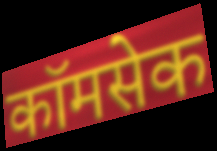
कॉमसेक